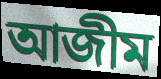
আজীম